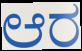
ಆರ